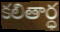
కలితార్ధ